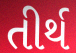
તીર્થ